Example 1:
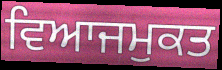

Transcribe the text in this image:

ਵਿਆਜਮੁਕਤ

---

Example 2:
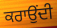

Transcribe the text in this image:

ਕਰਾਉਂਦੀ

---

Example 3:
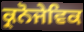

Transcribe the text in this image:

ਕ੍ਰਨੋਜੇਵਿਕ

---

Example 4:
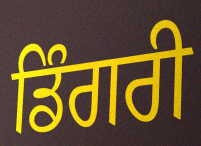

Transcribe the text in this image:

ਡਿੰਗਰੀ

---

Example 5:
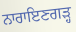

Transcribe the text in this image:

ਨਾਰਾਇਣਗੜ੍ਹ